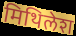
मिथिलेश